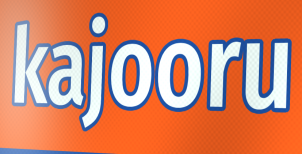
kajooru